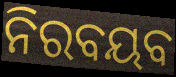
ନିରବୟବ